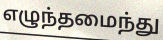
எழுந்தமைந்து